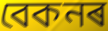
বেকনৰ